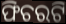
ଫିଚରଟି